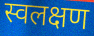
स्वलक्षण